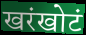
खरंखोटं